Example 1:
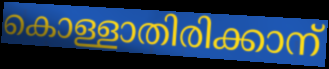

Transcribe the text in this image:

കൊള്ളാതിരിക്കാന്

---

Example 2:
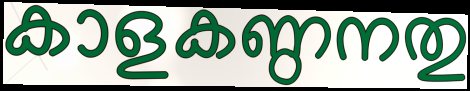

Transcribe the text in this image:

കാളകണ്ഠനതു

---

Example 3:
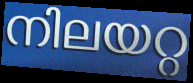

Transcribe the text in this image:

നിലയറ്റ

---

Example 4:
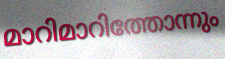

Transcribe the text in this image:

മാറിമാറിത്തോന്നും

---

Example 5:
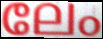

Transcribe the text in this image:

ലേം